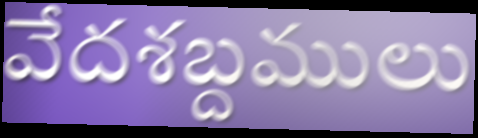
వేదశబ్దములు